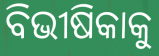
ବିଭୀଷିକାକୁ